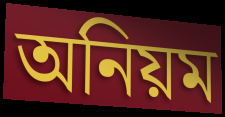
অনিয়ম